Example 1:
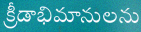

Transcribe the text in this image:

క్రీడాభిమానులను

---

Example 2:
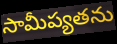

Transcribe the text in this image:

సామీప్యతను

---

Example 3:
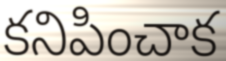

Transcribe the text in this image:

కనిపించాక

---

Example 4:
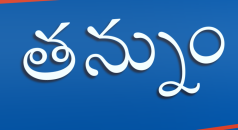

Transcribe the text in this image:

తన్నుం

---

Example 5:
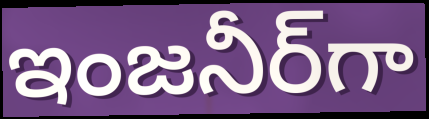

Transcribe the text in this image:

ఇంజనీర్‌గా